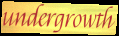
undergrowth